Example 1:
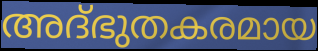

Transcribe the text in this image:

അദ്ഭുതകരമായ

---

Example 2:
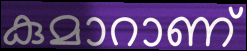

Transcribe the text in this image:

കുമാറാണ്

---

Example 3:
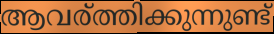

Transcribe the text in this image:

ആവര്ത്തിക്കുന്നുണ്ട്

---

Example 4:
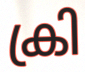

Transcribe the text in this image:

ക്രി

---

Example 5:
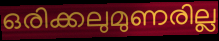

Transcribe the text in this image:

ഒരിക്കലുമുണരില്ല